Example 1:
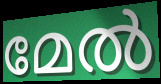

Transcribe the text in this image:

മേൽ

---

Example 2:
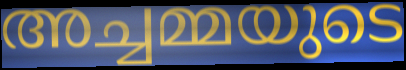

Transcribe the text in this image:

അച്ചമ്മയുടെ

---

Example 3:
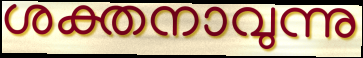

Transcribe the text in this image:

ശക്തനാവുന്നു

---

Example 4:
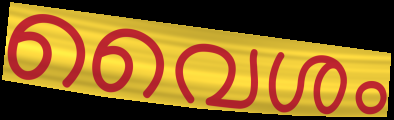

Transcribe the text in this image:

വൈശം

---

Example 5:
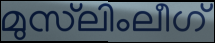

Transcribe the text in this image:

മുസ്‌ലിംലീഗ്